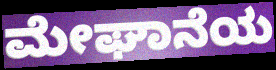
ಮೇಘಾನೆಯ